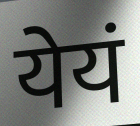
येयं